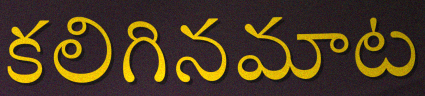
కలిగినమాట